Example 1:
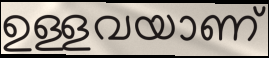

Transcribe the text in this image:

ഉള്ളവയാണ്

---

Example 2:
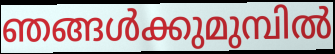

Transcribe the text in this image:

ഞങ്ങൾക്കുമുമ്പിൽ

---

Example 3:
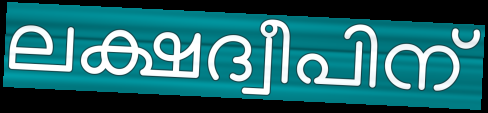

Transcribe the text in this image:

ലക്ഷദ്വീപിന്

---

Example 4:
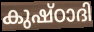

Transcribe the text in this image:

കുഷ്ഠാദി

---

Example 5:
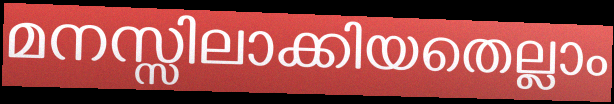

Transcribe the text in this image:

മനസ്സിലാക്കിയതെല്ലാം